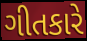
ગીતકારે